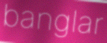
banglar